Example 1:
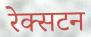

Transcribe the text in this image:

रेक्सटन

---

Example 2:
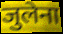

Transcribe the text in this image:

जुलेना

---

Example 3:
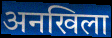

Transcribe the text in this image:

अनखिला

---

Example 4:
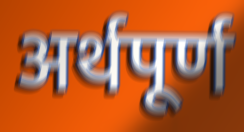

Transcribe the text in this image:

अर्थपूर्ण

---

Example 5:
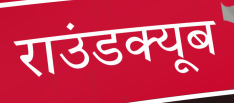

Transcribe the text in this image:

राउंडक्यूब